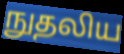
நுதலிய